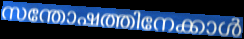
സന്തോഷത്തിനേക്കാൾ